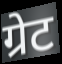
ग्रेट